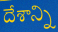
దేశాన్ని